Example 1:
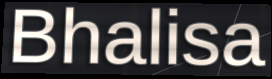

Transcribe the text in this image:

Bhalisa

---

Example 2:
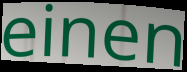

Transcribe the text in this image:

einen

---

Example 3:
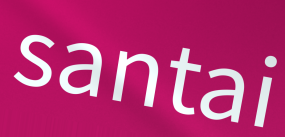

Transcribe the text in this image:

santai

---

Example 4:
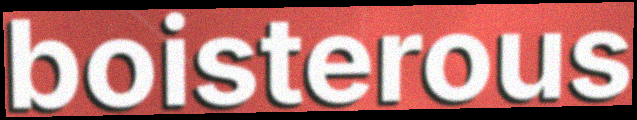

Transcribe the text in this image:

boisterous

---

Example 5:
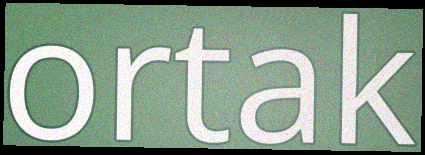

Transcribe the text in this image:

ortak